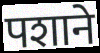
पशाने